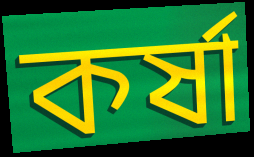
কর্ষা